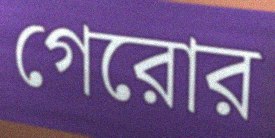
গেরোর